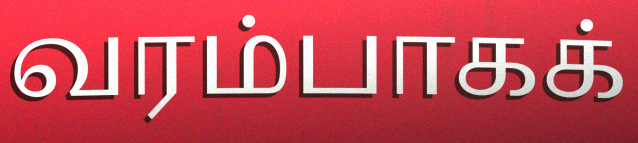
வரம்பாகக்